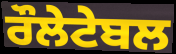
ਰੌਲੇਟੇਬਲ